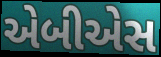
એબીએસ